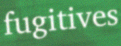
fugitives